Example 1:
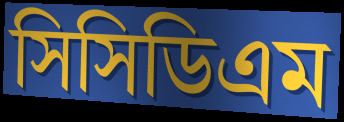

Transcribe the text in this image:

সিসিডিএম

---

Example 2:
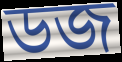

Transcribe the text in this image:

ডজ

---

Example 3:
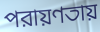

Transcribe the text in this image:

পরায়ণতায়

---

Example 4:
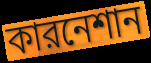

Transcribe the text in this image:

কারনেশান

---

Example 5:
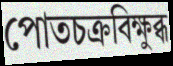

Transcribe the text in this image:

পোতচক্রবিক্ষুব্ধ